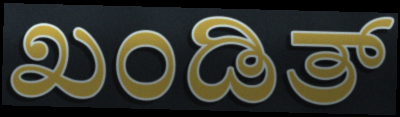
ಖಂಡಿತ್